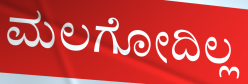
ಮಲಗೋದಿಲ್ಲ